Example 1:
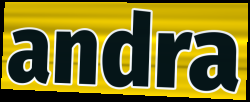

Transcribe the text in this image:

andra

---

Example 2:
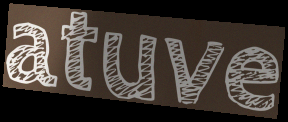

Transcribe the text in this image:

atuve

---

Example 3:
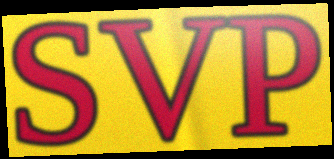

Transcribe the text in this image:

SVP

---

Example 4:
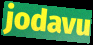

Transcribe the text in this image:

jodavu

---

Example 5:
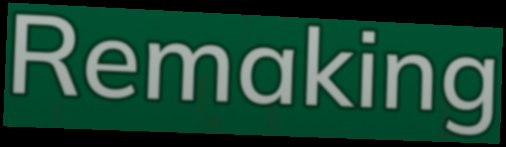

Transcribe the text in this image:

Remaking